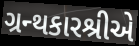
ગ્રન્થકારશ્રીએ